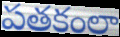
పతకంలా